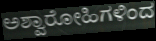
ಅಶ್ವಾರೋಹಿಗಳಿಂದ